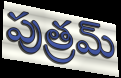
పుత్రమ్